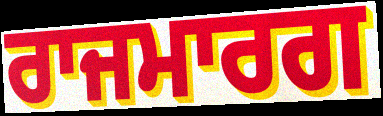
ਰਾਜਮਾਰਗ